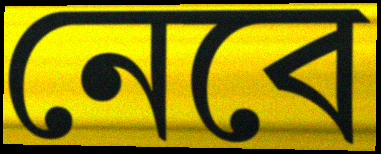
নেবে